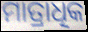
ମାତ୍ରାଧିକ